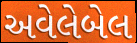
અવેલેબેલ